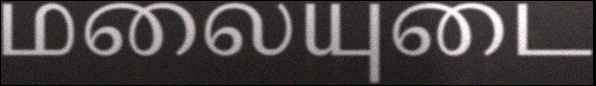
மலையுடை